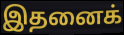
இதனைக்